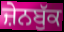
ਜ਼ੇਨਬੁੱਕ